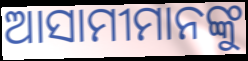
ଆସାମୀମାନଙ୍କୁ